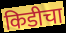
किडीचा